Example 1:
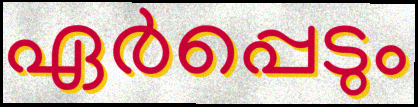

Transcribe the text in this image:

ഏർപ്പെടും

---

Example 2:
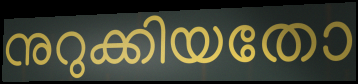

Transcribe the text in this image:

നുറുക്കിയതോ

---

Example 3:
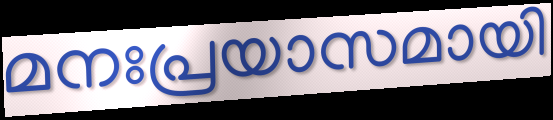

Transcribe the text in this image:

മനഃപ്രയാസമായി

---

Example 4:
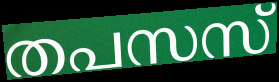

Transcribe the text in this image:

തപസസ്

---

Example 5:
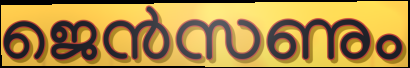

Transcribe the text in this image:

ജെൻസണും